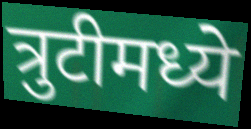
त्रुटीमध्ये